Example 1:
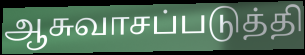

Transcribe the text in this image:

ஆசுவாசப்படுத்தி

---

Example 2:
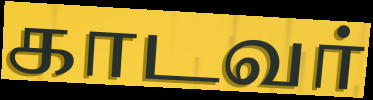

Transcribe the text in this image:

காடவர்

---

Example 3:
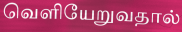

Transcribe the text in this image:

வெளியேறுவதால்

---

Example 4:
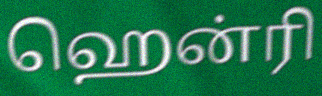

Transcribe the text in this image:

ஹென்ரி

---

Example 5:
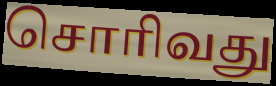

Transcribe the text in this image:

சொரிவது